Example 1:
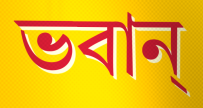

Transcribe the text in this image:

ভবান্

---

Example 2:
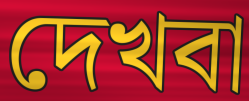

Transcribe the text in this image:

দেখবা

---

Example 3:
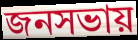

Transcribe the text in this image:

জনসভায়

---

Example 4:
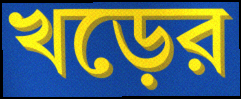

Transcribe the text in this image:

খড়ের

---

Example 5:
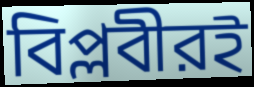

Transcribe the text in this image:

বিপ্লবীরই